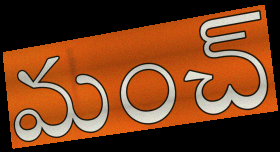
మంచ్